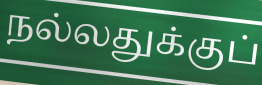
நல்லதுக்குப்